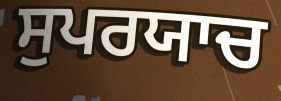
ਸੁਪਰਯਾਚ